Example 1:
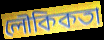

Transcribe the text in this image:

লৌকিকতা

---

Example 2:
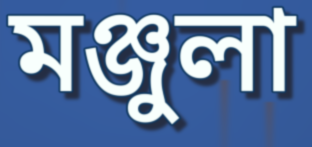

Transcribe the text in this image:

মঞ্জুলা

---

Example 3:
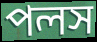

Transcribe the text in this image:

পলস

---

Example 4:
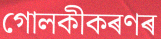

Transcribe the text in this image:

গোলকীকৰণৰ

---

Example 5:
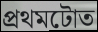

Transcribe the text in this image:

প্ৰথমটোত